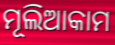
ମୂଲିଆକାମ